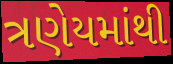
ત્રણેયમાંથી